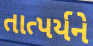
તાત્પર્યને